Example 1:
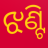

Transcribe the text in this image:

ଝଣ୍ଟି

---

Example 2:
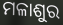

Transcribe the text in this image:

ମଳାଶୁର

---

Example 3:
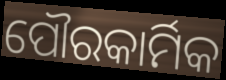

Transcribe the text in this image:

ପୌରକାର୍ମିକ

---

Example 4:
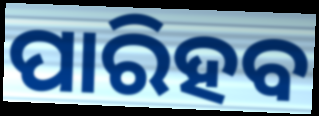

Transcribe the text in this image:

ପାରିହବ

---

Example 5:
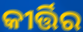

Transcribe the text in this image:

କୀର୍ତ୍ତିର